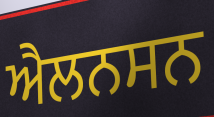
ਐਲਨਸਨ